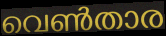
വെൺതാര